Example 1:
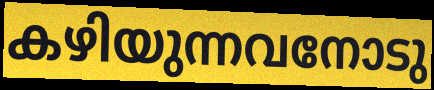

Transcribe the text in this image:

കഴിയുന്നവനോടു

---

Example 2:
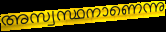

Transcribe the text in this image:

അസ്വസ്ഥനാണെന്നു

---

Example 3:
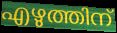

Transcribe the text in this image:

എഴുത്തിന്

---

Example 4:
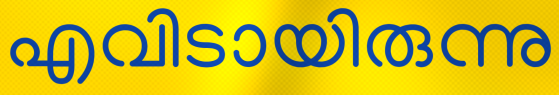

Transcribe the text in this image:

എവിടായിരുന്നു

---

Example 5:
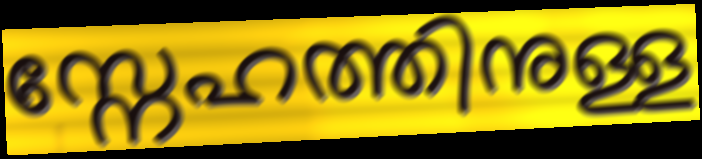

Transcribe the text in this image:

സ്നേഹത്തിനുള്ള